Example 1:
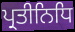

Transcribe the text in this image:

ਪ੍ਰਤੀਨਿਧਿ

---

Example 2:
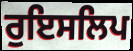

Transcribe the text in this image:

ਰੁਇਸਲਿਪ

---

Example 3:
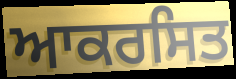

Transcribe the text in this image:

ਆਕਰਸਿਤ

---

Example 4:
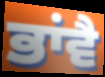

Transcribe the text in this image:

ਭਾਂਵੈ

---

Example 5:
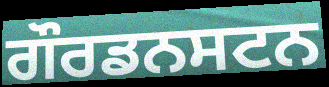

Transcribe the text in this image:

ਗੌਰਡਨਸਟਨ